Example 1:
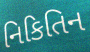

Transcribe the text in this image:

નિકિતિન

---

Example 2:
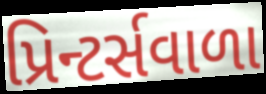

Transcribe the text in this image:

પ્રિન્ટર્સવાળા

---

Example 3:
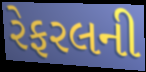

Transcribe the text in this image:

રેફરલની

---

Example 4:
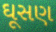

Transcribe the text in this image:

ઘૂસણ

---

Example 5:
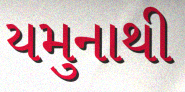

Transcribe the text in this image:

યમુનાથી